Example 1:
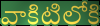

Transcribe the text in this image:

వాకిటిలోకి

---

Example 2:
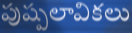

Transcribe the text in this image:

పుష్పలావికలు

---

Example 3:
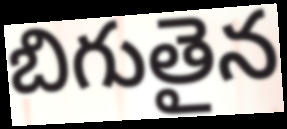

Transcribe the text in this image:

బిగుతైన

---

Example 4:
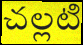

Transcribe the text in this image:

చల్లటి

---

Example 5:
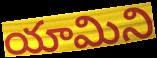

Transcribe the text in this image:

యామిని